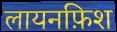
लायनफ़िश